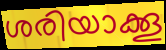
ശരിയാക്കൂ